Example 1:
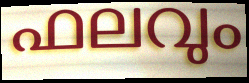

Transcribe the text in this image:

ഫലവും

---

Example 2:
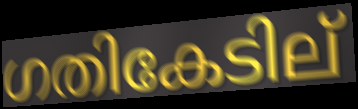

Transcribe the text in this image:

ഗതികേടില്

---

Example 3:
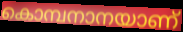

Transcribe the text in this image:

കൊമ്പനാനയാണ്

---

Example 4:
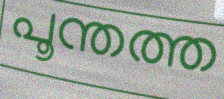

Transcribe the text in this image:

പൂന്തത്ത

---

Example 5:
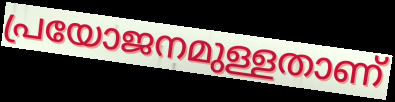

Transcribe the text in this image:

പ്രയോജനമുള്ളതാണ്